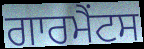
ਗਾਰਮੈਂਟਸ